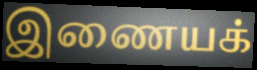
இணையக்